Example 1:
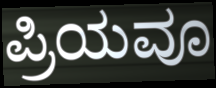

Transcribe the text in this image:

ಪ್ರಿಯವೂ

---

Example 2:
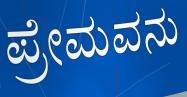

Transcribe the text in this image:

ಪ್ರೇಮವನು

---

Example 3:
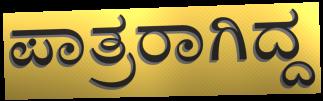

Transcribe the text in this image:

ಪಾತ್ರರಾಗಿದ್ದ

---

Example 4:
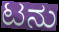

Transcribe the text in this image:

ಟನು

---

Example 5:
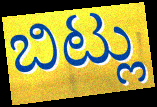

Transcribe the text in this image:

ಬಿಟ್ಲು